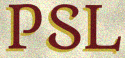
PSL